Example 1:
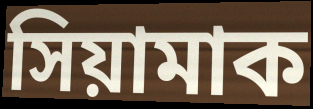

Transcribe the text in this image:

সিয়ামাক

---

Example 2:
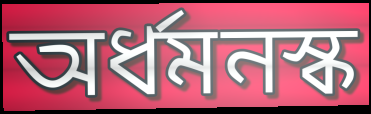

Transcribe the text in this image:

অর্ধমনস্ক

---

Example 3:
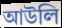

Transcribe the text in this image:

আউলি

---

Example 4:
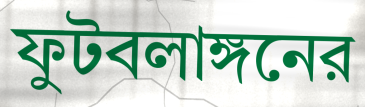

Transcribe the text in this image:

ফুটবলাঙ্গনের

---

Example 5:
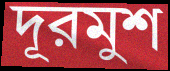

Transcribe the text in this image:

দূরমুশ